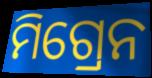
ମିଗ୍ରେନ